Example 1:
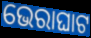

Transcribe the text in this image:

ଭେରାଘାଟ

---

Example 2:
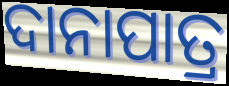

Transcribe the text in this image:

ଦାନାପାତ୍ର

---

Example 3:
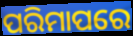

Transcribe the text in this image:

ପରିମାପରେ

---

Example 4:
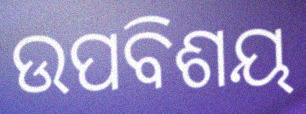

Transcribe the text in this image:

ଉପବିଶୟ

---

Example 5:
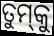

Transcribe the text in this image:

ତୁମ୍‌କୁ